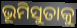
ଭୂମିସୁତାକୁ